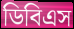
ডিবিএস